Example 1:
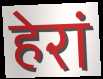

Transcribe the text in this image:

हेरां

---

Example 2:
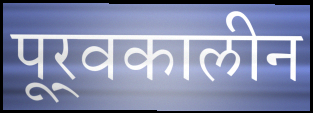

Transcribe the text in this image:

पूर्वकालीन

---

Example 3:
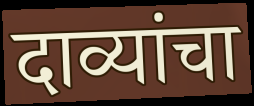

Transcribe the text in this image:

दाव्यांचा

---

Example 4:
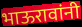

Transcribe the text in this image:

भाऊरावांनी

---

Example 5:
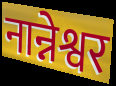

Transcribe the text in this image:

नान्नेश्वर